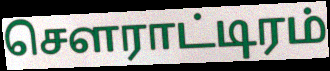
சௌராட்டிரம்